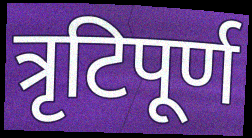
त्रृटिपूर्ण